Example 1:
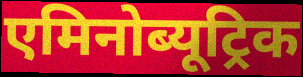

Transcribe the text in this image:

एमिनोब्यूट्रिक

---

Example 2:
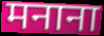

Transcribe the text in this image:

मनाना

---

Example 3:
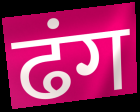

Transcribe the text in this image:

ढंग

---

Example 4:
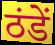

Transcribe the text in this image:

ठंडें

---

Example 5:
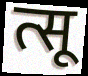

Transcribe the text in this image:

त्सू